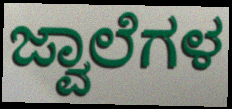
ಜ್ವಾಲೆಗಳ